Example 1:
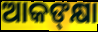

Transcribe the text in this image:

ଆକଙ୍‌କ୍ଷା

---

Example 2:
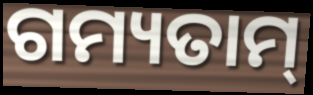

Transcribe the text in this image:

ଗମ୍ୟତାମ୍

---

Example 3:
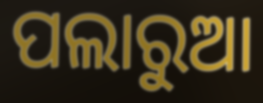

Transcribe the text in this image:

ପଲାରୁଆ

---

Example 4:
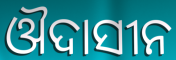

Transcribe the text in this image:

ଔଦାସୀନ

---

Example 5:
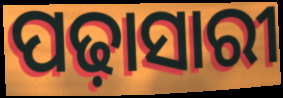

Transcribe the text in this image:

ପଢ଼ାସାରୀ